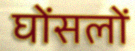
घोंसलों